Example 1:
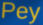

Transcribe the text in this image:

Pey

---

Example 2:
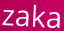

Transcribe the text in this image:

zaka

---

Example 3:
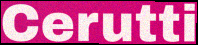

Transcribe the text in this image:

Cerutti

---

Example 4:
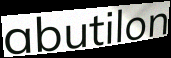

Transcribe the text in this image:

abutilon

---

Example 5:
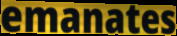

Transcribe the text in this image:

emanates